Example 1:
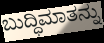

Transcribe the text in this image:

ಬುದ್ಧಿಮಾತನ್ನು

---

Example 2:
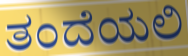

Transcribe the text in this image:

ತಂದೆಯಲಿ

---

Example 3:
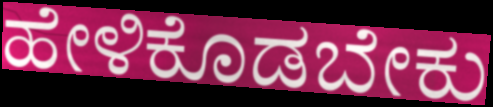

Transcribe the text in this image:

ಹೇಳಿಕೊಡಬೇಕು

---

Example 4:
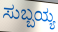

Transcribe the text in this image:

ಸುಬ್ಬಯ್ಯ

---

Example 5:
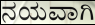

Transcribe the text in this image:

ನಯವಾಗಿ